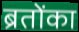
ब्रतोंका